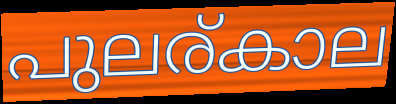
പുലര്കാല